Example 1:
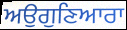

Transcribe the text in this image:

ਅਉਗੁਣਿਆਰਾ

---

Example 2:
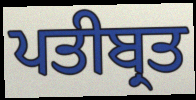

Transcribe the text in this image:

ਪਤੀਬ੍ਰਤ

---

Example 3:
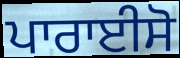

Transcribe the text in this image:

ਪਾਰਾਈਸੋ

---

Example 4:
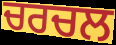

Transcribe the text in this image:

ਚਰਚਲ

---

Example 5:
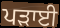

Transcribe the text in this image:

ਪੜਾਈ